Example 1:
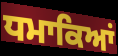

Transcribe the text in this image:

ਧਮਾਕਿਆਂ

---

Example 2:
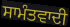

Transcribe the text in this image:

ਸਾਮੰਤਵਾਦੀ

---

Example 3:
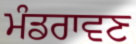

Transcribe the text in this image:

ਮੰਡਰਾਵਣ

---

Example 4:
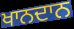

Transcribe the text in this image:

ਖਾਨਦਾਨ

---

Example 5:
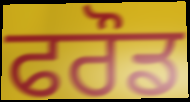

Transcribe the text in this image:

ਫਰੌਡ